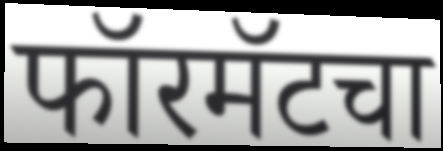
फॉरमॅटचा